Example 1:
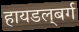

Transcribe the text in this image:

हायडल्‌बर्ग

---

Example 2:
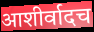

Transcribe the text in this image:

आशीर्वादच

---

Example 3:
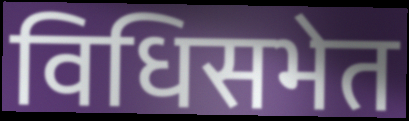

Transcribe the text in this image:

विधिसभेत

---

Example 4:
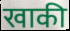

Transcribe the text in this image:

खाकी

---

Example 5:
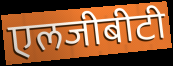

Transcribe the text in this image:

एलजीबीटी